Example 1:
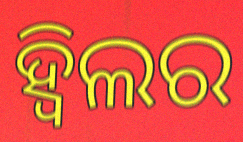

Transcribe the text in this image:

ହ୍ୱିଲର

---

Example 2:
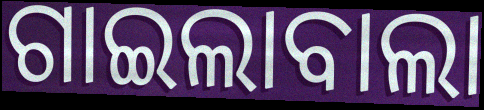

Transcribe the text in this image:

ଗାଇଲାବାଲା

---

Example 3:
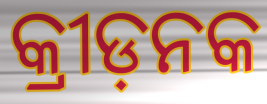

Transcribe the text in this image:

କ୍ରୀଡ଼ନକ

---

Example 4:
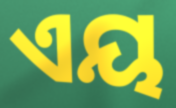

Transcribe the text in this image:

ଏୟ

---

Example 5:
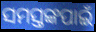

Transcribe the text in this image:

ସମସ୍ତଙ୍କପାଇଁ